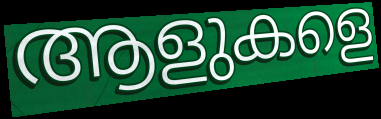
ആളുകളെ